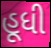
હૂધી